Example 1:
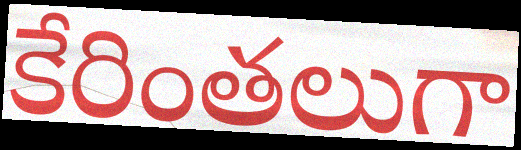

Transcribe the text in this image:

కేరింతలుగా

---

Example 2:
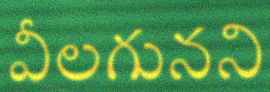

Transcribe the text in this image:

వీలగునని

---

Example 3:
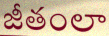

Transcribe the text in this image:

జీతంలా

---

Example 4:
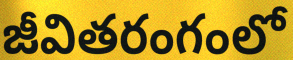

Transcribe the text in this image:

జీవితరంగంలో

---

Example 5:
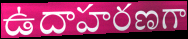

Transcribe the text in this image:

ఉదాహరణగా